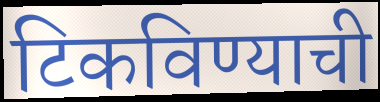
टिकविण्याची